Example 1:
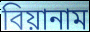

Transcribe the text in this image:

বিয়ানাম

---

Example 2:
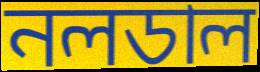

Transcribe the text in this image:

নলডাল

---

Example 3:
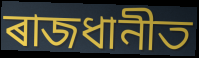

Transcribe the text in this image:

ৰাজধানীত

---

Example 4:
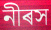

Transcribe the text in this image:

নীৰস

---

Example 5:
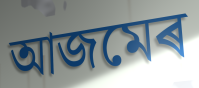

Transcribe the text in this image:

আজমেৰ